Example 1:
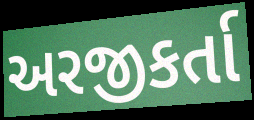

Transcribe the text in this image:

અરજીકર્તા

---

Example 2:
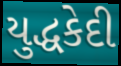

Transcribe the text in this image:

યુદ્ધકેદી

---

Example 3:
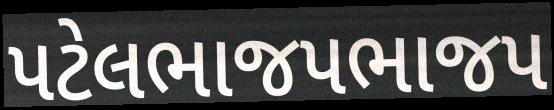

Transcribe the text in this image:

પટેલભાજપભાજપ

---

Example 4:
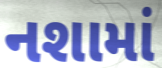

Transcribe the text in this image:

નશામાં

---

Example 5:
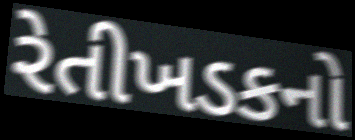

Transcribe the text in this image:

રેતીખડકનો